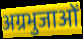
अग्रभुजाओं